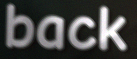
back